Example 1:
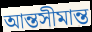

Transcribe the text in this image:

আন্তসীমান্ত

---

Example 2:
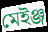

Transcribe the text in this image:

মেইঞ্জ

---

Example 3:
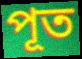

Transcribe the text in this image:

পূত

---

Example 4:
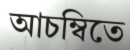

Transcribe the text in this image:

আচম্বিতে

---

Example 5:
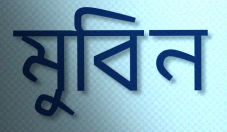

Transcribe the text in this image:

মুবিন